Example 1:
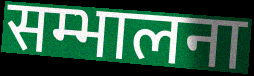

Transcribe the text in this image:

सम्भालना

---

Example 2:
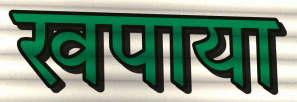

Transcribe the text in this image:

खपाया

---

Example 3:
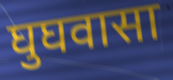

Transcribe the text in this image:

घुघवासा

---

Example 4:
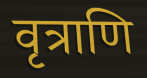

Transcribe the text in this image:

वृत्राणि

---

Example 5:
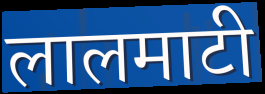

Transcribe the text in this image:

लालमाटी